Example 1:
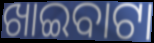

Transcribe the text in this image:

ଖାଇବାଟା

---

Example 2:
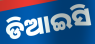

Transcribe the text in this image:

ଡିଆଇସି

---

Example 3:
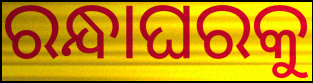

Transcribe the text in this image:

ରନ୍ଧାଘରକୁ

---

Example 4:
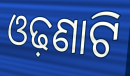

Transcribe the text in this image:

ଓଢ଼ଣାଟି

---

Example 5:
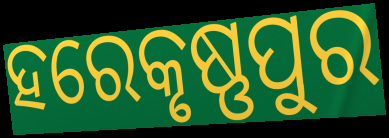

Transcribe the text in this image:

ହରେକୃଷ୍ଣପୁର